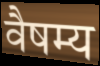
वैषम्य